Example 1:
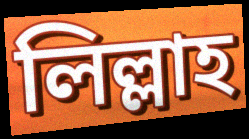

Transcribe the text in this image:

লিল্লাহ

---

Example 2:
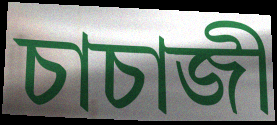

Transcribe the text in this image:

চাচাজী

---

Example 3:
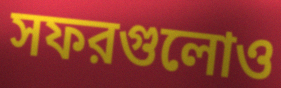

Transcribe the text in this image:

সফরগুলোও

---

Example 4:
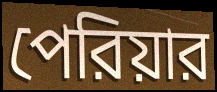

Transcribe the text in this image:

পেরিয়ার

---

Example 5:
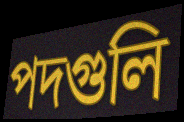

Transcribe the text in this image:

পদগুলি